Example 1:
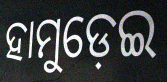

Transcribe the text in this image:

ହାମୁଡ଼େଇ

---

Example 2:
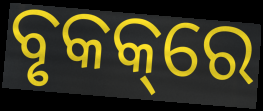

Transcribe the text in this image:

ବୃକକ୍‌ରେ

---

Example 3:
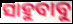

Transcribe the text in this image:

ସାହୁବାବୁ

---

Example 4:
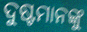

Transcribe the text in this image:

ଦୁଷ୍ଟମାନଙ୍କୁ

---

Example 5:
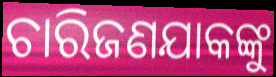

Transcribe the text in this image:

ଚାରିଜଣଯାକଙ୍କୁ